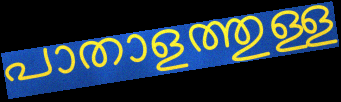
പാതാളത്തുള്ള